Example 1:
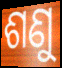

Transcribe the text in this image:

ଶଣୁ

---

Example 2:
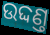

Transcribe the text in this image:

ଉଦ୍ଦଣ୍ତ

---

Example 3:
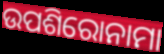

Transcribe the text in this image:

ଉପଶିରୋନାମା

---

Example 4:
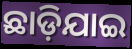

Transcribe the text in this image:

ଛାଡ଼ିଯାଇ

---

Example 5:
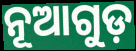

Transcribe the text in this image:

ନୂଆଗୁଡ଼